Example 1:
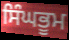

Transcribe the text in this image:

ਸਿੰਘਭੂਮ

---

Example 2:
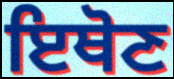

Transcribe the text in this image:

ਇਥੋਣ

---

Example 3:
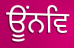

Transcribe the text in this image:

ਊਂਨਵਿ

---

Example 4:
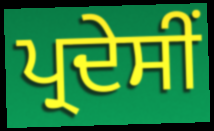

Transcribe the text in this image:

ਪ੍ਰਦੇਸੀਂ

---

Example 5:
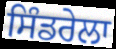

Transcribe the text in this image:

ਸਿੰਡਰੇਲਾ